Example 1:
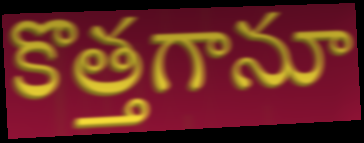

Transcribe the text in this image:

కొత్తగానూ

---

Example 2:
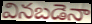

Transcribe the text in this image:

వినబడెనా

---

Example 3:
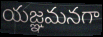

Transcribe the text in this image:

యజ్ఞమనగా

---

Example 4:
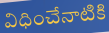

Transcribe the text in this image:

విధించేనాటికి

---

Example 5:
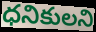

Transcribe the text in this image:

ధనికులని